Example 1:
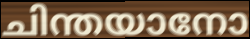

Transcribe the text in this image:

ചിന്തയാനോ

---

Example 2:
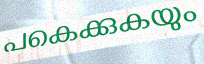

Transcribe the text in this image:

പകെക്കുകയും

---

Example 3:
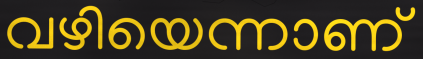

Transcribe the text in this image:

വഴിയെന്നാണ്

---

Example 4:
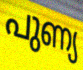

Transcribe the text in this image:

പുണ്യ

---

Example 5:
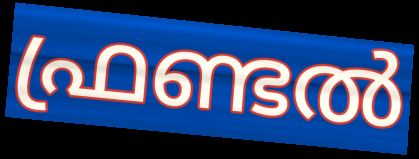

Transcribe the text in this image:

ഫ്രണ്ടൽ